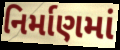
નિર્માણમાં